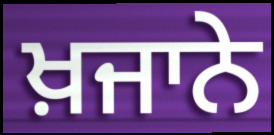
ਖ਼ਜਾਨੇ